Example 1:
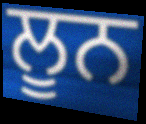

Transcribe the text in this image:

ਲੂਨ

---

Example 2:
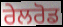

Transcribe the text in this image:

ਰੇਲਰੋਡ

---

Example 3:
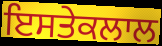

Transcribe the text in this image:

ਇਸਤੇਕਲਾਲ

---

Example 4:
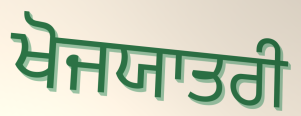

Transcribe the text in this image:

ਖੋਜਯਾਤਰੀ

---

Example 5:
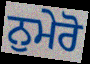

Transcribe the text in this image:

ਨੁਮੇਰੋ